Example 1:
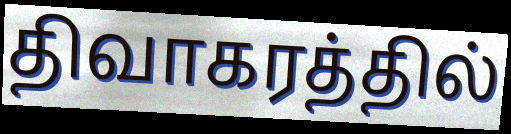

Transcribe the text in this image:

திவாகரத்தில்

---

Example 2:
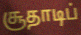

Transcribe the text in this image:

சூதாடிப்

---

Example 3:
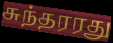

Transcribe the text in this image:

சுந்தரரது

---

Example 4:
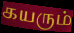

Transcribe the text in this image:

கயரும்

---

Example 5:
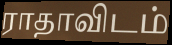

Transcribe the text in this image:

ராதாவிடம்